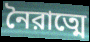
নৈরাত্মে